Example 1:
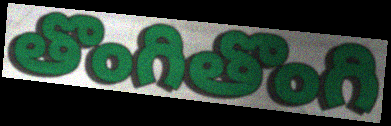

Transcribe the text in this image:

తొంగితొంగి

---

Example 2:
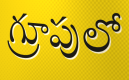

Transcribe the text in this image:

గ్రూపులో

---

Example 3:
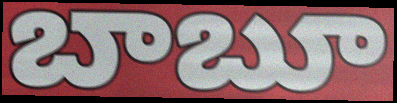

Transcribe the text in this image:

బాబూ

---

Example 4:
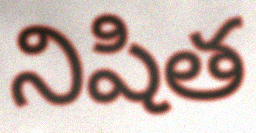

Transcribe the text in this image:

నిషిత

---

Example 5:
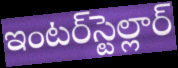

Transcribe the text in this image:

ఇంటర్‌స్టెల్లార్